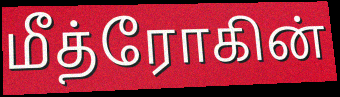
மீத்ரோகின்